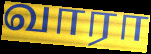
வாரா